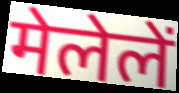
मेलेलें